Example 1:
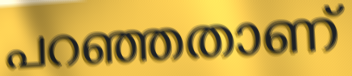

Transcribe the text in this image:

പറഞ്ഞതാണ്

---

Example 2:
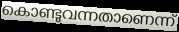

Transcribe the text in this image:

കൊണ്ടുവന്നതാണെന്ന്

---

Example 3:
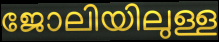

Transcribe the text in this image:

ജോലിയിലുള്ള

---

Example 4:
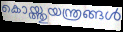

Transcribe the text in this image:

കൊയ്ത്തുയന്ത്രങ്ങൾ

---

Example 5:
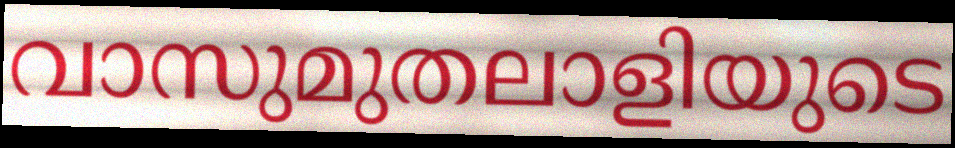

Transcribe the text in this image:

വാസുമുതലാളിയുടെ